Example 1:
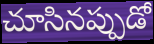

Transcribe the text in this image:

చూసినప్పుడో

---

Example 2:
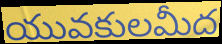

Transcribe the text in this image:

యువకులమీద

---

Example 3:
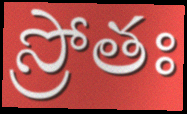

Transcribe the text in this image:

స్రోతః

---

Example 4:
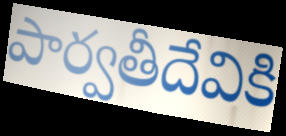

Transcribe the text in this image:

పార్వతీదేవికి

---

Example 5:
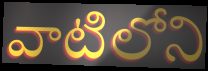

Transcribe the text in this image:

వాటిలోని